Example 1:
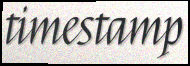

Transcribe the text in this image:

timestamp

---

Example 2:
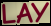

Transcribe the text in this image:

LAY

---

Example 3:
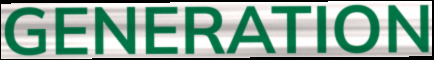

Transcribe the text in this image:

GENERATION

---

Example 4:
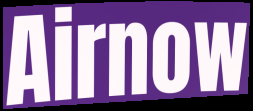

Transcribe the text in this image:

Airnow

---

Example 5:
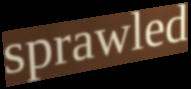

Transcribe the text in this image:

sprawled